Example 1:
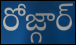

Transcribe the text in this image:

రోజ్గార్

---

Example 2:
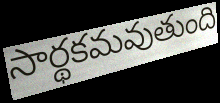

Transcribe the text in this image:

సార్థకమవుతుంది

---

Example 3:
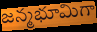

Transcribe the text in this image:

జన్మభూమిగా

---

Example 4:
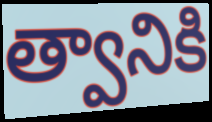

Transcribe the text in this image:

త్వానికి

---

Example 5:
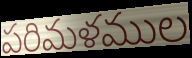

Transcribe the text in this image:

పరిమళముల